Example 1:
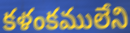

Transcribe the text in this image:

కళంకములేని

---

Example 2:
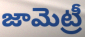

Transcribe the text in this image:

జామెట్రీ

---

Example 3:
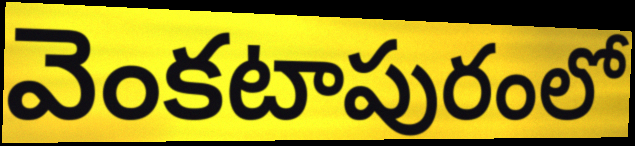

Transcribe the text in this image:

వెంకటాపురంలో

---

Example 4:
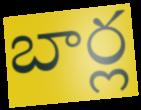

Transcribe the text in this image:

బార్ల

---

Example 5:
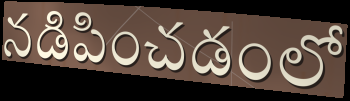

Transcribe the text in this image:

నడిపించడంలో